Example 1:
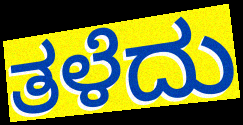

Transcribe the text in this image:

ತಳೆದು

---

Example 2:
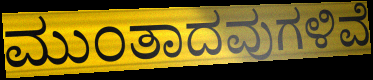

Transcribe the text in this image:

ಮುಂತಾದವುಗಳಿವೆ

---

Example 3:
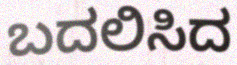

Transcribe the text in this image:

ಬದಲಿಸಿದ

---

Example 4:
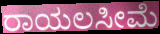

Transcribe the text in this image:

ರಾಯಲಸೀಮೆ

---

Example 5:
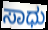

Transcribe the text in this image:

ಸಾಧು